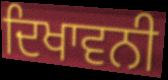
ਦਿਖਾਵਨੀ